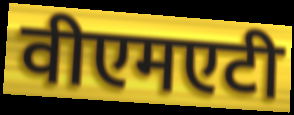
वीएमएटी